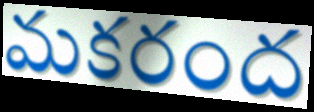
మకరంద